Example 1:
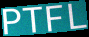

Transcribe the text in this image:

PTFL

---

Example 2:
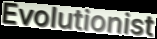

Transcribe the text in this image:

Evolutionist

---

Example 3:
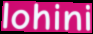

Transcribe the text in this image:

lohini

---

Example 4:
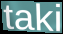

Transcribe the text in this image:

taki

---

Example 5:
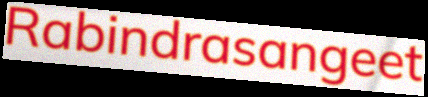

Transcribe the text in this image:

Rabindrasangeet